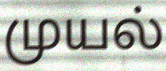
முயல்